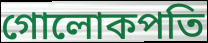
গোলোকপতি